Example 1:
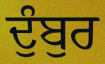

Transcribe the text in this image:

ਦੁੰਬੁਰ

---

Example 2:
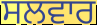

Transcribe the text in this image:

ਸਲਵਾਰ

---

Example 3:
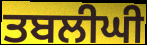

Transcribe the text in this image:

ਤਬਲੀਘੀ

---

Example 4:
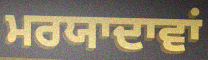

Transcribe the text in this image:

ਮਰਯਾਦਾਵਾਂ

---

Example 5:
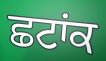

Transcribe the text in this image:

ਛਟਾਂਕ